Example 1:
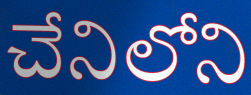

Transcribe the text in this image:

చేనిలోని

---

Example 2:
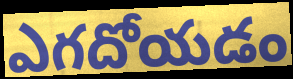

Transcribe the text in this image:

ఎగదోయడం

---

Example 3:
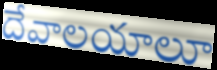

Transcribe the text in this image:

దేవాలయాలూ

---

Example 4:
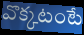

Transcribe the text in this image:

వొక్కటంటే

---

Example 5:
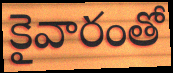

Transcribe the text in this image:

కైవారంతో